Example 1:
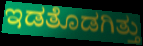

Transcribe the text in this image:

ಇಡತೊಡಗಿತ್ತು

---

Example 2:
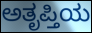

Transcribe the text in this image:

ಅತೃಪ್ತಿಯ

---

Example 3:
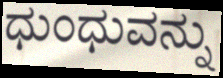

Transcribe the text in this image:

ಧುಂಧುವನ್ನು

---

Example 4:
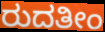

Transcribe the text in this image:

ರುದತೀಂ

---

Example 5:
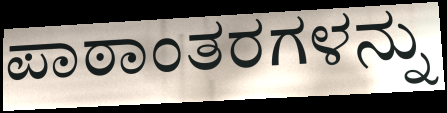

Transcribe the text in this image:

ಪಾಠಾಂತರಗಳನ್ನು